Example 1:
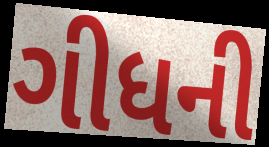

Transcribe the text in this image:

ગીધની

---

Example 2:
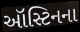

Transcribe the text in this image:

ઑસ્ટિનના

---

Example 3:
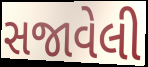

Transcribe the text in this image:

સજાવેલી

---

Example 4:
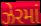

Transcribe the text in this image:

ઝેરમાં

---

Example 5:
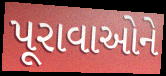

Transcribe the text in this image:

પૂરાવાઓને